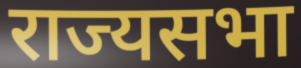
राज्यसभा